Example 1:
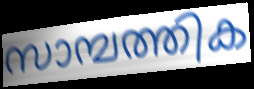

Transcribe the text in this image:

സാമ്പത്തിക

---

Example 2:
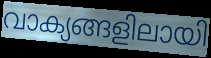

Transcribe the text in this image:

വാക്യങ്ങളിലായി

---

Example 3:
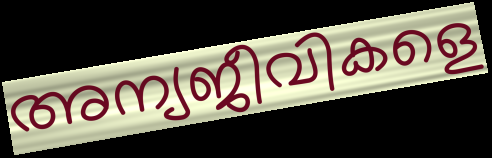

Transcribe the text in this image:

അന്യജീവികളെ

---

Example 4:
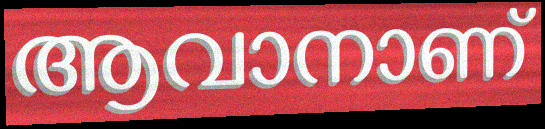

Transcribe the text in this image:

ആവാനാണ്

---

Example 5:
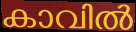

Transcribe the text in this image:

കാവിൽ